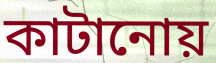
কাটানোয়